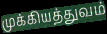
முக்கியத்துவம்